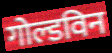
गोल्डविन